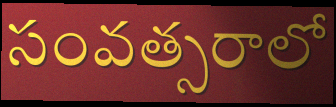
సంవత్సరాలో